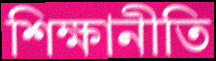
শিক্ষানীতি